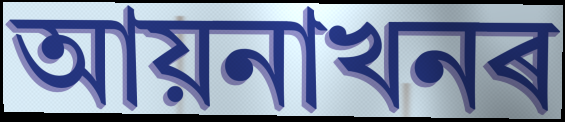
আয়নাখনৰ